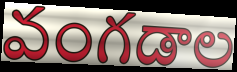
వంగడాల